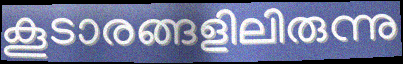
കൂടാരങ്ങളിലിരുന്നു